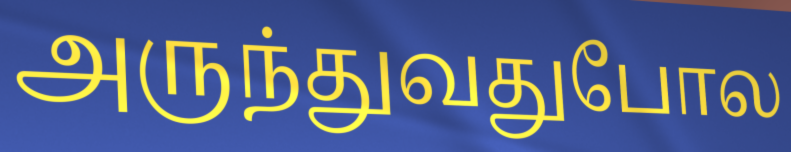
அருந்துவதுபோல